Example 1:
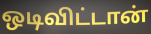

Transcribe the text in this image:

ஒடிவிட்டான்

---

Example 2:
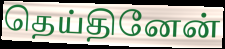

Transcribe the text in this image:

தெய்தினேன்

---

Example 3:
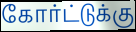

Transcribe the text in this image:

கோர்ட்டுக்கு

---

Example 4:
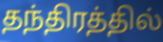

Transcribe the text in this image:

தந்திரத்தில்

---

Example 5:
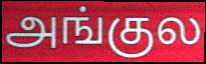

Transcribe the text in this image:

அங்குல